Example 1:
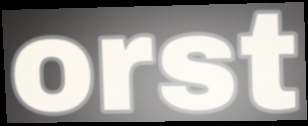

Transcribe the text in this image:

orst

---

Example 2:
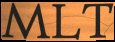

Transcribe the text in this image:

MLT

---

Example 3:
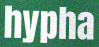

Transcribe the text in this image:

hypha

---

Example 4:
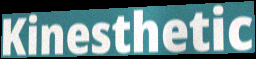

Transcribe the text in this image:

Kinesthetic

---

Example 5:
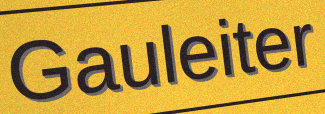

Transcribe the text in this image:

Gauleiter